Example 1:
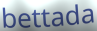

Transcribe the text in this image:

bettada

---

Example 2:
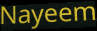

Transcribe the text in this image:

Nayeem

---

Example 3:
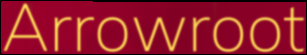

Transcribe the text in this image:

Arrowroot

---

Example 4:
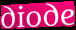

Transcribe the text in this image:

diode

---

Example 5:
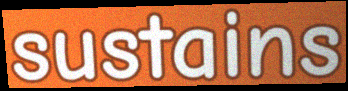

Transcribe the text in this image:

sustains